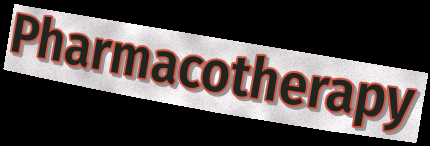
Pharmacotherapy